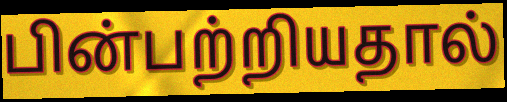
பின்பற்றியதால்